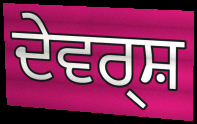
ਦੇਵਰ੍ਸ਼